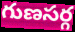
గుణసర్గ